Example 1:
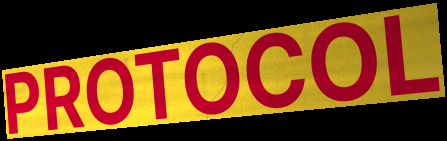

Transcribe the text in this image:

PROTOCOL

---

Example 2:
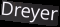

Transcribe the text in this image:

Dreyer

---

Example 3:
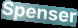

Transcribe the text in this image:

Spenser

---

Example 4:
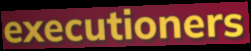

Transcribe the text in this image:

executioners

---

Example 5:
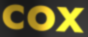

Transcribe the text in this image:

cox